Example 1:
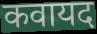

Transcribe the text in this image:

कवायद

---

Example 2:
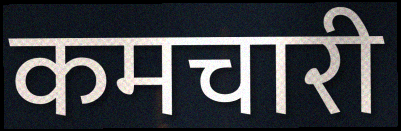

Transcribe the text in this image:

कमचारी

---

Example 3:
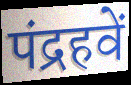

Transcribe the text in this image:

पंद्रहवें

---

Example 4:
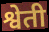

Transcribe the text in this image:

श्वेती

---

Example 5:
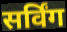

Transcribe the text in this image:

सर्विंग